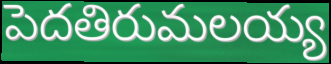
పెదతిరుమలయ్య